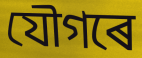
যৌগৰে